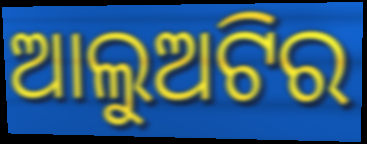
ଆଲୁଅଟିର